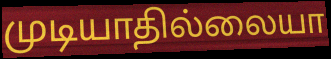
முடியாதில்லையா